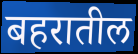
बहरातील